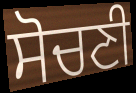
ਸੋਚਣੀ